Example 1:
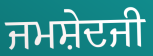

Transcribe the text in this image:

ਜਮਸ਼ੇਦਜੀ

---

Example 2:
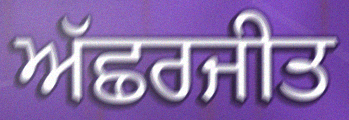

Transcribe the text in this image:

ਅੱਛਰਜੀਤ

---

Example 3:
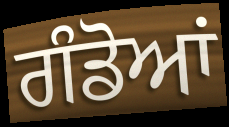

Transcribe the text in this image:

ਗੰਡੋਆਂ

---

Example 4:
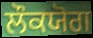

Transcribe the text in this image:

ਲੌਕਯੋਗ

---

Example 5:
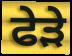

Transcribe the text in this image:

ਫੇੜੇ